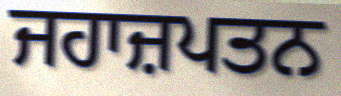
ਜਹਾਜ਼ਪਤਨ